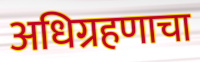
अधिग्रहणाचा